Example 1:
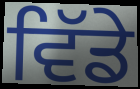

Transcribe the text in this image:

ਵਿੱਡੇ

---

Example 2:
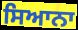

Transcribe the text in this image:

ਸਿਆਨਾ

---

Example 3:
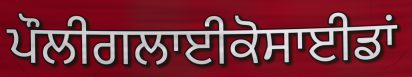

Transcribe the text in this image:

ਪੌਲੀਗਲਾਈਕੋਸਾਈਡਾਂ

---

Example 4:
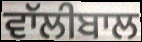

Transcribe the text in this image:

ਵਾੱਲੀਬਾਲ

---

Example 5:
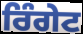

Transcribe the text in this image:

ਰਿੰਗੇਟ